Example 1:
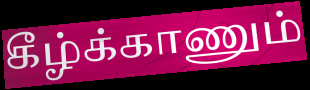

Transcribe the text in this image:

கீழ்க்காணும்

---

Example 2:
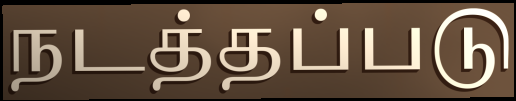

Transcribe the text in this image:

நடத்தப்படு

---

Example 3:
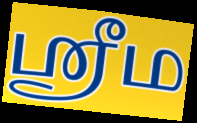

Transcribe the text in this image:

ஶ்ரீம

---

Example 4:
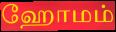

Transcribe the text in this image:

ஹோமம்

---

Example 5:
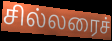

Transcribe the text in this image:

சில்லரைச்